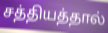
சத்தியத்தால்